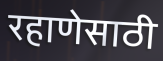
रहाणेसाठी